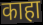
काहा